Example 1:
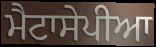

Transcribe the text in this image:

ਮੈਟਾਸੇਪੀਆ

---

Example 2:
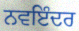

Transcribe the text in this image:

ਨਵਇੰਦਰ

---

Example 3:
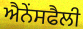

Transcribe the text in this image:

ਐਨੇਂਸਫੈਲੀ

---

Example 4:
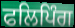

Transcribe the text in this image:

ਫਲਿਪਿੰਗ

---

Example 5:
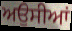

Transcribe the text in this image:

ਅਉਸੀਆਂ